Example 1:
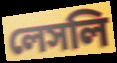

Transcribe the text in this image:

লেসলি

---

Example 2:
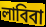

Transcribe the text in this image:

লাবিবা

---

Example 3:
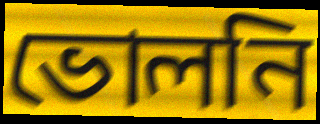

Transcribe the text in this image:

ভোলনি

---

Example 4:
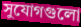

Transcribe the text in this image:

সুযোগগুলো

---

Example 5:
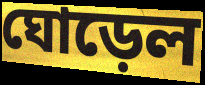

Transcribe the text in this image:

ঘোড়েল